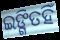
ଇଙ୍ଗିତହିଁ